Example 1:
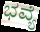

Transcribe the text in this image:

ಭವ್ಯೆ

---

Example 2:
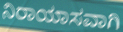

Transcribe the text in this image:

ನಿರಾಯಾಸವಾಗಿ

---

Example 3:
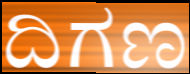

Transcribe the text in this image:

ದಿಗಣ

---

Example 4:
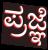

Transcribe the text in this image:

ಪ್ರಜ್ಞೆ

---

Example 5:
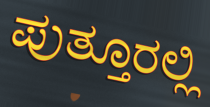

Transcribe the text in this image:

ಪುತ್ತೂರಲ್ಲಿ